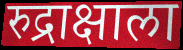
रुद्राक्षाला